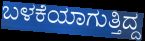
ಬಳಕೆಯಾಗುತ್ತಿದ್ದ